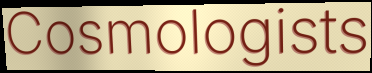
Cosmologists